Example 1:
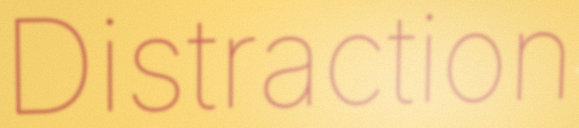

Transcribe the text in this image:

Distraction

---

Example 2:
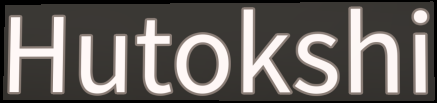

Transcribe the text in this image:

Hutokshi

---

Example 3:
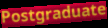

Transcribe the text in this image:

Postgraduate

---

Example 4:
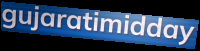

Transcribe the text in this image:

gujaratimidday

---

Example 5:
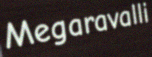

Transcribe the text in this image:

Megaravalli